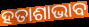
ହତାଶାଭାବ